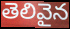
తెలివైన